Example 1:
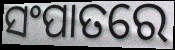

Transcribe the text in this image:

ସଂପାତରେ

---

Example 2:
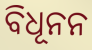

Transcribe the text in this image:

ବିଧୂନନ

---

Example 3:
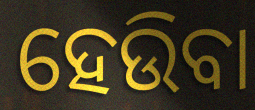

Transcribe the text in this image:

ହେଉିବା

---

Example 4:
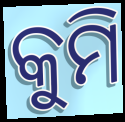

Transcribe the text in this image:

କୁମି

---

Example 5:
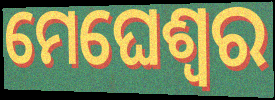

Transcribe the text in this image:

ମେଘେଶ୍ୱର